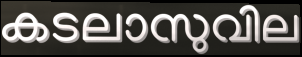
കടലാസുവില